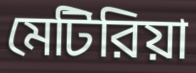
মেটিরিয়া